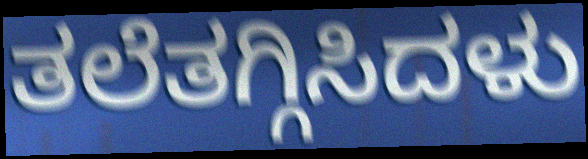
ತಲೆತಗ್ಗಿಸಿದಳು